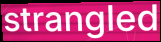
strangled